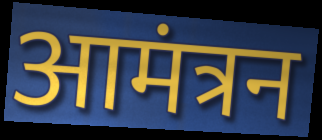
आमंत्रन